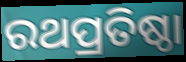
ରଥପ୍ରତିଷ୍ଠା